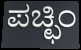
ಪಚ್ಛಿಂ